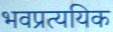
भवप्रत्ययिक